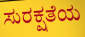
ಸುರಕ್ಷತೆಯ